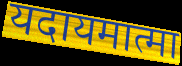
यदायमात्मा